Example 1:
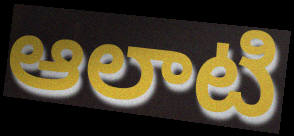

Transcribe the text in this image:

ఆలాటి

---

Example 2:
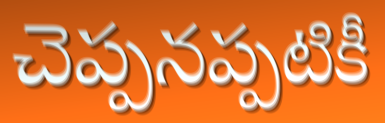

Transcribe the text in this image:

చెప్పనప్పటికీ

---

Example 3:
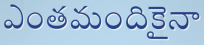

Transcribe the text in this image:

ఎంతమందికైనా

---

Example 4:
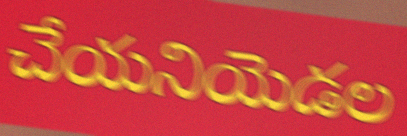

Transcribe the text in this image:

చేయనియెడల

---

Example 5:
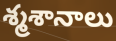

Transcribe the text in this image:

శ్మశానాలు